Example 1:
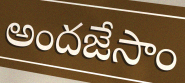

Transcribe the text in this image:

అందజేసాం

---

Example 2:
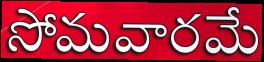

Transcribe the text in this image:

సోమవారమే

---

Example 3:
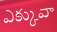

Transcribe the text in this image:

ఎక్కువా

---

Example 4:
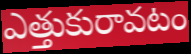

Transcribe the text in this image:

ఎత్తుకురావటం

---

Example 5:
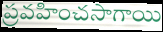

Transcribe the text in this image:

ప్రవహించసాగాయి